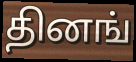
தினங்